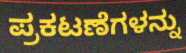
ಪ್ರಕಟಣೆಗಳನ್ನು